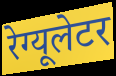
रेग्यूलेटर